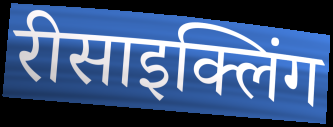
रीसाइक्लिंग